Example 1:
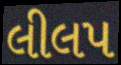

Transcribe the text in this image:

લીલપ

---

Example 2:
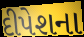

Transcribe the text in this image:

દીપેશના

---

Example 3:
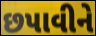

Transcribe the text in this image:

છપાવીને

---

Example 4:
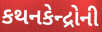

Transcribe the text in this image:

કથનકેન્દ્રોની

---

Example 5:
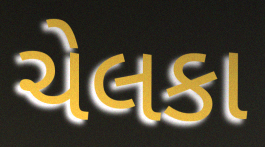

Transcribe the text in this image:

ચેલકા